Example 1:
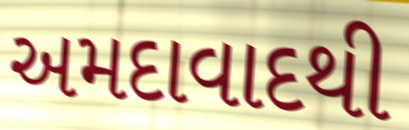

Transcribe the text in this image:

અમદાવાદથી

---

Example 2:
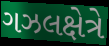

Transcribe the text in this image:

ગઝલક્ષેત્રે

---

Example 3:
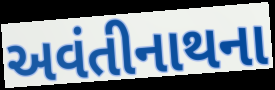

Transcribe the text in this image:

અવંતીનાથના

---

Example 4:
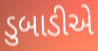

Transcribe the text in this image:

ડુબાડીએ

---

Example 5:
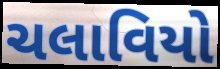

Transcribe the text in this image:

ચલાવિયો